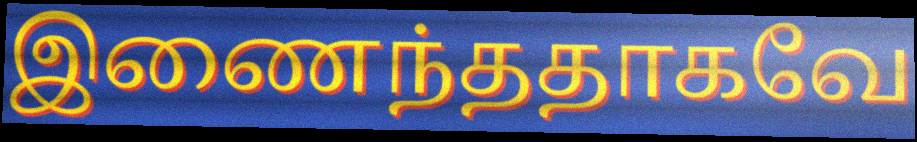
இணைந்ததாகவே